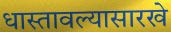
धास्तावल्यासारखे